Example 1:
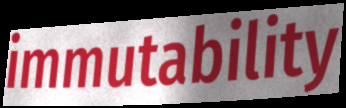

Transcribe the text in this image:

immutability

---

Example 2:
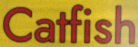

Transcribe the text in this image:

Catfish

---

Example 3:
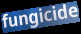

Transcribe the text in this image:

fungicide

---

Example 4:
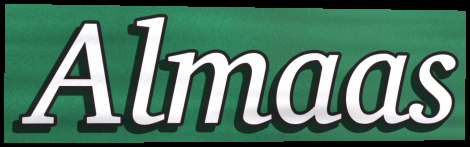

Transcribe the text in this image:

Almaas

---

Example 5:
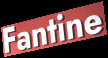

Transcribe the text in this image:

Fantine